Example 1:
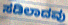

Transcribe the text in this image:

ಸಡಿಲಾದವು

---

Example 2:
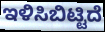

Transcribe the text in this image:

ಇಳಿಸಿಬಿಟ್ಟಿದೆ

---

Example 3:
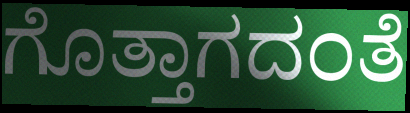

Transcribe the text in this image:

ಗೊತ್ತಾಗದಂತೆ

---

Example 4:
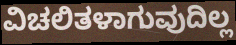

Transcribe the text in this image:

ವಿಚಲಿತಳಾಗುವುದಿಲ್ಲ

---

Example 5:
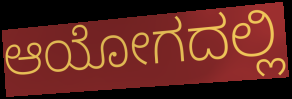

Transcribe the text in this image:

ಆಯೋಗದಲ್ಲಿ